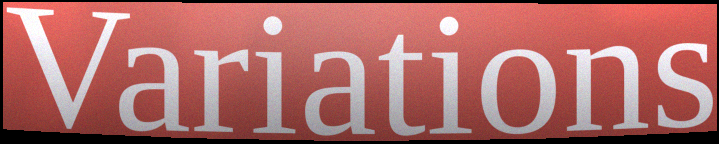
Variations